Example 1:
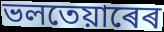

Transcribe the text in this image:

ভলতেয়াৰেৰ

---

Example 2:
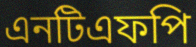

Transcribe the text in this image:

এনটিএফপি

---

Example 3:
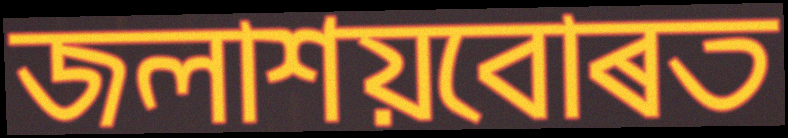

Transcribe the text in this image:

জলাশয়বোৰত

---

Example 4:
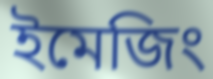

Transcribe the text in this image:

ইমেজিং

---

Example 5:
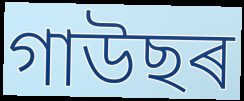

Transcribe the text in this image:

গাউছৰ